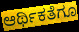
ಆರ್ಥಿಕತೆಗೂ